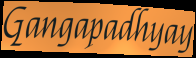
Gangapadhyay